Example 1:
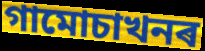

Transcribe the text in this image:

গামোচাখনৰ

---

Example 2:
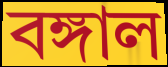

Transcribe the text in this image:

বঙ্গাল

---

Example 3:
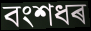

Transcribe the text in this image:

বংশধৰ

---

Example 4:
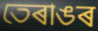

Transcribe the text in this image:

তেৰাঙৰ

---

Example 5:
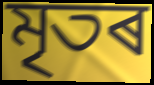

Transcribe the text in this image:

মৃতৰ